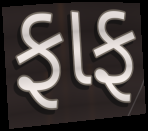
ફાફ